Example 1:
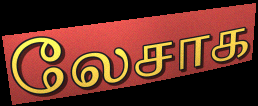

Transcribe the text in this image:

லேசாக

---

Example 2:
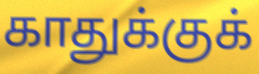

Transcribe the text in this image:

காதுக்குக்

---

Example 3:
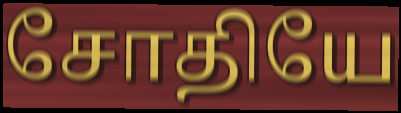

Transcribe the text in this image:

சோதியே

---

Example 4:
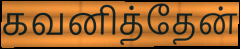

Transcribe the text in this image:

கவனித்தேன்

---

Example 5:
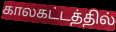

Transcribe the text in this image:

காலகட்டத்தில்